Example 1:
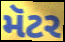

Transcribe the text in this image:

મૅટર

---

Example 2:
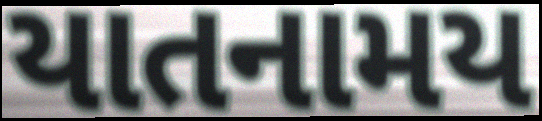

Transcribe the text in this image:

યાતનામય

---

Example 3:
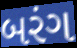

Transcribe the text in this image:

બરંગ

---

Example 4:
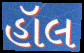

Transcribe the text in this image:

હૉલ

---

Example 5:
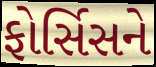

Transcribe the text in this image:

ફોર્સિસને